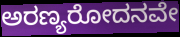
ಅರಣ್ಯರೋದನವೇ